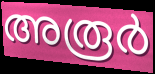
അരൂർ